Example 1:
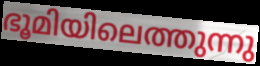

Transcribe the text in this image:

ഭൂമിയിലെത്തുന്നു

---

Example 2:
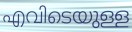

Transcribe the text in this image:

എവിടെയുള്ള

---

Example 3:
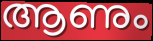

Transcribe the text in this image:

ആണും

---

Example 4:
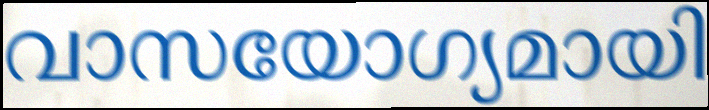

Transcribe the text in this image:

വാസയോഗ്യമായി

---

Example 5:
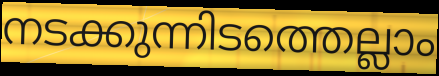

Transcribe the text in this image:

നടക്കുന്നിടത്തെല്ലാം